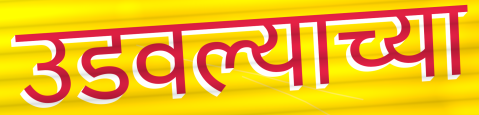
उडवल्याच्या